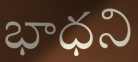
భాధని